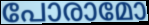
പോരാമോ